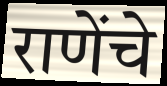
राणेंचे